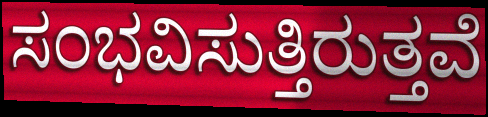
ಸಂಭವಿಸುತ್ತಿರುತ್ತವೆ